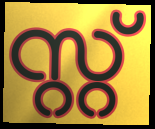
സ്റ്റ്